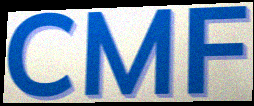
CMF